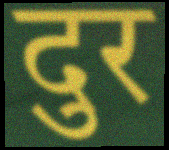
दुर